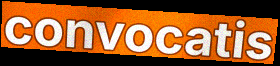
convocatis